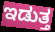
ಇಡುತ್ತ